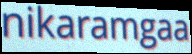
nikaramgaa